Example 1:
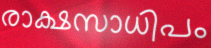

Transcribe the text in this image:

രാക്ഷസാധിപം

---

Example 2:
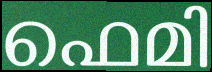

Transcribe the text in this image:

ഫെമി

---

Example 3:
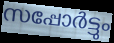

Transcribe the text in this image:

സപ്പോർട്ടും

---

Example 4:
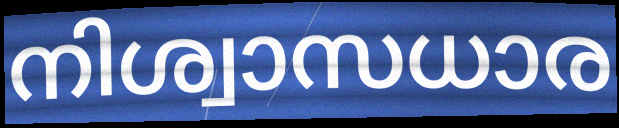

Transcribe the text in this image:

നിശ്വാസധാര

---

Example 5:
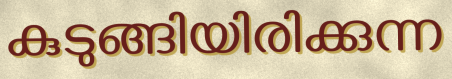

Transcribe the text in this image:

കുടുങ്ങിയിരിക്കുന്ന